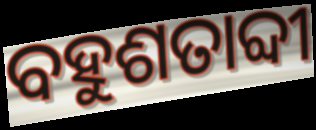
ବହୁଶତାବ୍ଦୀ